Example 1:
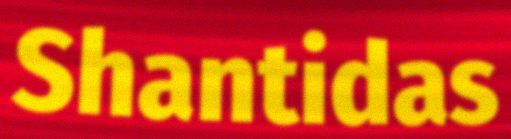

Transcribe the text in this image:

Shantidas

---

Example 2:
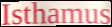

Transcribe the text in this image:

Isthamus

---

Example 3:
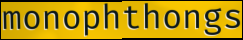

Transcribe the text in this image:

monophthongs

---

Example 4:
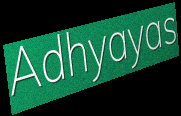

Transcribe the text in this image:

Adhyayas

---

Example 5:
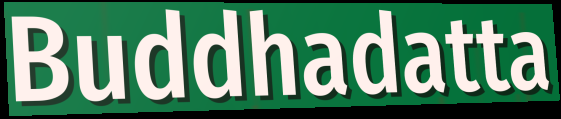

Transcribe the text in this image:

Buddhadatta